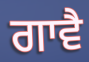
ਗਾਵੈ